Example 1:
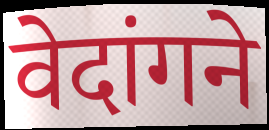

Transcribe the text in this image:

वेदांगने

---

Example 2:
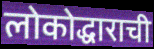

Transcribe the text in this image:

लोकोद्धाराची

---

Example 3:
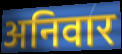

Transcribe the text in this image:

अनिवार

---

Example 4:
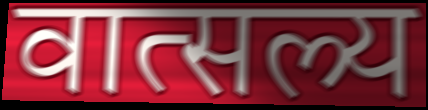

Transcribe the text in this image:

वात्सल्य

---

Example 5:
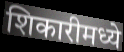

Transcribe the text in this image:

शिकारीमध्ये